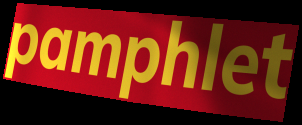
pamphlet